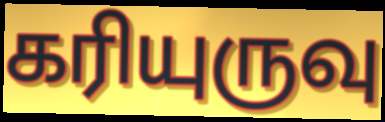
கரியுருவு